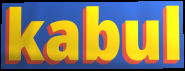
kabul